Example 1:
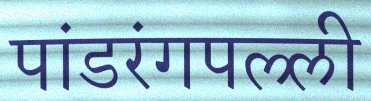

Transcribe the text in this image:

पांडरंगपल्ली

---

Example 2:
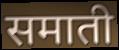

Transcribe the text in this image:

समाती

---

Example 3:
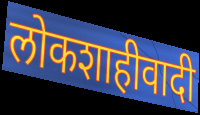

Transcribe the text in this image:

लोकशाहीवादी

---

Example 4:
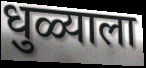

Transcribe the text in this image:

धुळ्याला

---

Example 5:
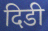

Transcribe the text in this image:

दिडी